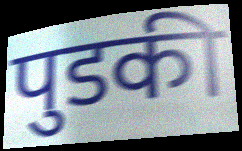
पुडकी